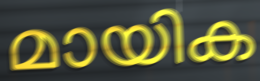
മായിക